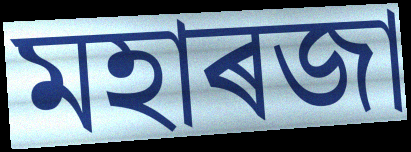
মহাৰজা